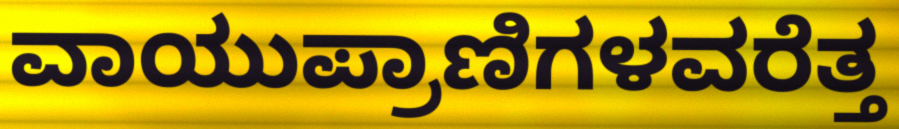
ವಾಯುಪ್ರಾಣಿಗಳವರೆತ್ತ